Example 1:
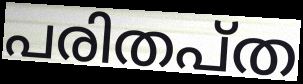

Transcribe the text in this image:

പരിതപ്ത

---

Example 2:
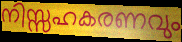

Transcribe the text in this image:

നിസ്സഹകരണവും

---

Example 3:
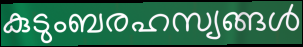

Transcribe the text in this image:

കുടുംബരഹസ്യങ്ങൾ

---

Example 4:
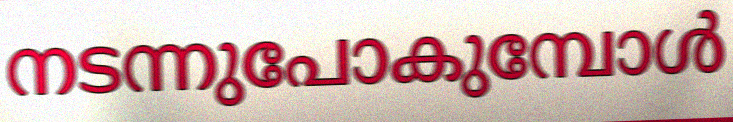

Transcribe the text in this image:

നടന്നുപോകുമ്പോൾ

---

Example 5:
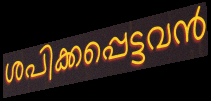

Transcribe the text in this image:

ശപിക്കപ്പെട്ടവൻ